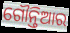
ଗୌନ୍ତିଆର